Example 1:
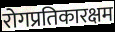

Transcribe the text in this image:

रोगप्रतिकारक्षम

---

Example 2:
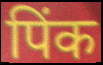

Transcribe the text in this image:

पिंक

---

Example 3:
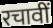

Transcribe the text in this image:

रचावीं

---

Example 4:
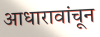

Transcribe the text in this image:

आधारावांचून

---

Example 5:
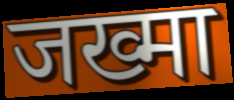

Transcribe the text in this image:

जख्मा